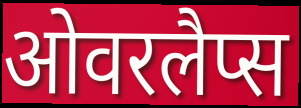
ओवरलैप्स